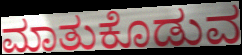
ಮಾತುಕೊಡುವ